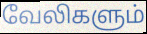
வேலிகளும்